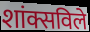
शांक्सविले